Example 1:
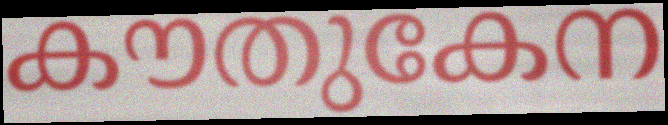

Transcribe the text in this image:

കൗതുകേന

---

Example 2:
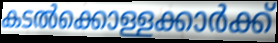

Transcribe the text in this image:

കടൽക്കൊള്ളക്കാർക്ക്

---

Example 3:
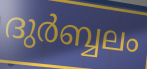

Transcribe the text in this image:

ദുർബ്ബലം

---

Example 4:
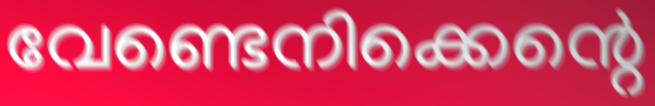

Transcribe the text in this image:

വേണ്ടെനിക്കെന്റെ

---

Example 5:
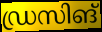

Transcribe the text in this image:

ഡ്രസിങ്